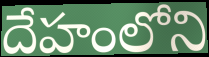
దేహంలోని